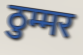
ठुम्मर